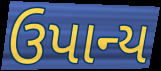
ઉપાન્ય